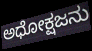
ಅಧೋಕ್ಷಜನು